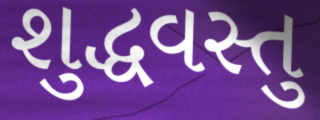
શુદ્ધવસ્તુ